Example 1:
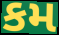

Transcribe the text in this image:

કમ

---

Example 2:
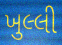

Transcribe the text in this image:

ખુલ્લી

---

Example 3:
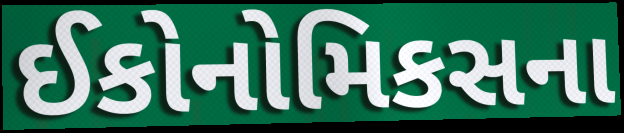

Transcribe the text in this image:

ઈકોનોમિકસના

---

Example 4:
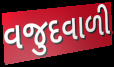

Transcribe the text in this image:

વજુદવાળી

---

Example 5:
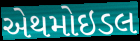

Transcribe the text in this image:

એથમોઇડલ